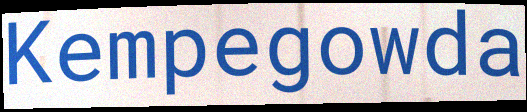
Kempegowda